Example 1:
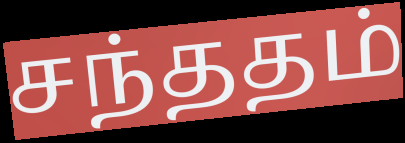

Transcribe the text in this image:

சந்ததம்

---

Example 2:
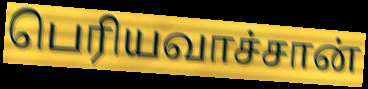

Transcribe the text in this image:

பெரியவாச்சான்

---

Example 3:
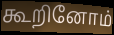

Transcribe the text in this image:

கூறினோம்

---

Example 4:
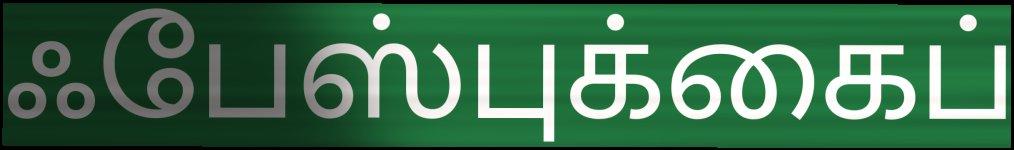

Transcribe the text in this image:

ஃபேஸ்புக்கைப்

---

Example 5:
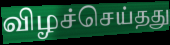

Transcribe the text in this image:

விழச்செய்தது